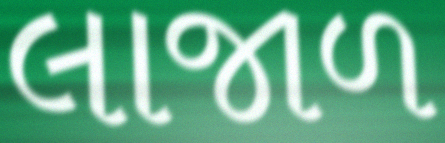
લાજાળ